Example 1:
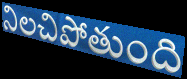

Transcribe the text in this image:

నిలచిపోతుంది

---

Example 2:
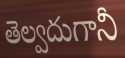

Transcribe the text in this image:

తెల్వదుగానీ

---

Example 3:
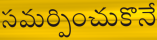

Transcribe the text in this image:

సమర్పించుకొనే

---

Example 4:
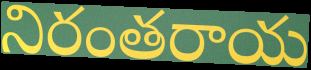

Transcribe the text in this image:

నిరంతరాయ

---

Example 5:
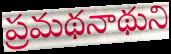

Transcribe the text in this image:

ప్రమథనాథుని